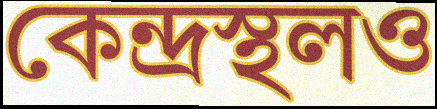
কেন্দ্রস্থলও